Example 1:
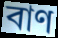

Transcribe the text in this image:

বাণ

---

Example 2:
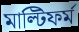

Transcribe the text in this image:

মাল্টিফর্ম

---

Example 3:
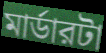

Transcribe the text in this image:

মার্ডারটা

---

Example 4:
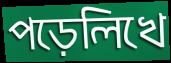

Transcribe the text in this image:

পড়েলিখে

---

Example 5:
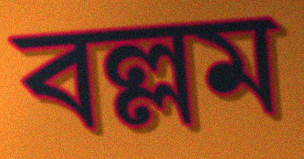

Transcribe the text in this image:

বল্লম